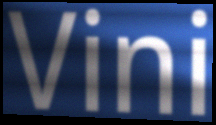
Vini